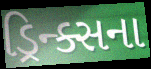
ડ્રિન્ક્સના